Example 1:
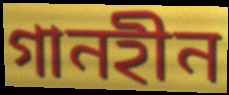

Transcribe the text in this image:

গানহীন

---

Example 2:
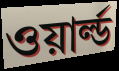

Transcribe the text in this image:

ওয়ার্ল্ড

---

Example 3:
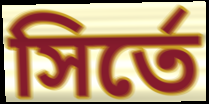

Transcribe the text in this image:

সির্তে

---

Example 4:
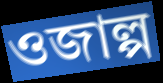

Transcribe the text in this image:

ওজাল্প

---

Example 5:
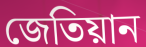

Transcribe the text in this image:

জেতিয়ান